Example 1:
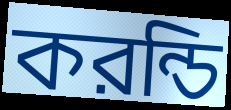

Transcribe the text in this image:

করন্ডি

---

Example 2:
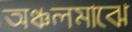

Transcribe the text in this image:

অঞ্চলমাঝে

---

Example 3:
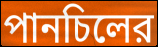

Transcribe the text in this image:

পানচিলের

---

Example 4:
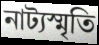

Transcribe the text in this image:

নাট্যস্মৃতি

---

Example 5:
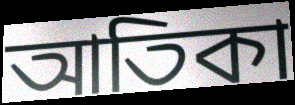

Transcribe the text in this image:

আতিকা